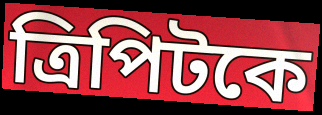
ত্রিপিটকে